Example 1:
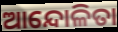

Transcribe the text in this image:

ଆନ୍ଦୋଳିତା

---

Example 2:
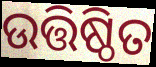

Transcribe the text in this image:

ଉତ୍ତିଷ୍ଠିତ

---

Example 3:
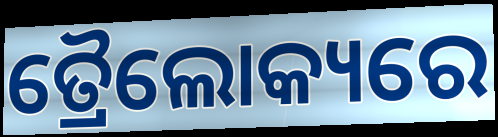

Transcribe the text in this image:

ତ୍ରୈଲୋକ୍ୟରେ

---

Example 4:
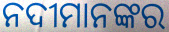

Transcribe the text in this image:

ନଦୀମାନଙ୍କର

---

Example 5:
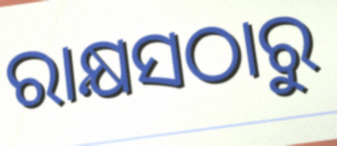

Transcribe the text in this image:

ରାକ୍ଷସଠାରୁ